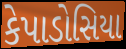
કેપાડોસિયા